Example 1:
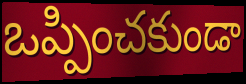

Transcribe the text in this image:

ఒప్పించకుండా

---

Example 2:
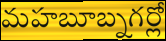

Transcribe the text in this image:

మహబూబ్నగర్లో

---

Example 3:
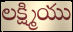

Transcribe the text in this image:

లక్ష్మియు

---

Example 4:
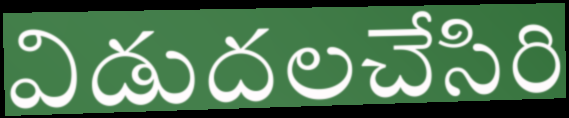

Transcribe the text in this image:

విడుదలచేసిరి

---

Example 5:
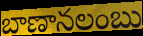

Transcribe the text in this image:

బాణానలంబు